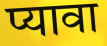
प्यावा